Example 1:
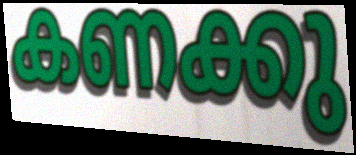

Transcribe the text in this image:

കണക്കു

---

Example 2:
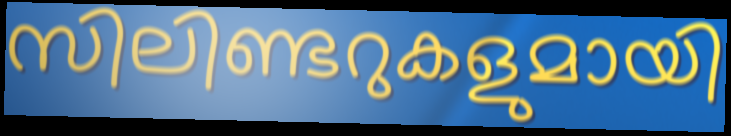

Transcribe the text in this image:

സിലിണ്ടറുകളുമായി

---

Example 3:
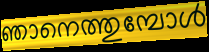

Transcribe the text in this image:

ഞാനെത്തുമ്പോൾ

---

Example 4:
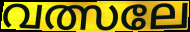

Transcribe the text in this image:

വത്സലേ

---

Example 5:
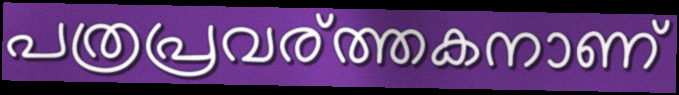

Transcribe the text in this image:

പത്രപ്രവര്ത്തകനാണ്